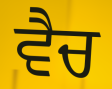
ਵੈਚ